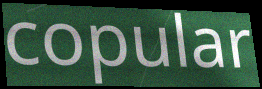
copular